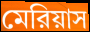
মেরিয়াস